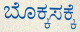
ಬೊಕ್ಕಸಕ್ಕೆ